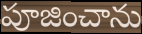
పూజించాను